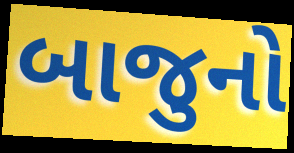
બાજુનો